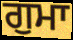
ਗੁਮਾ